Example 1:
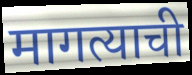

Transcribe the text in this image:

मागत्याची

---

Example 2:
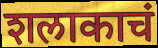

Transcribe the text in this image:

शलाकाचं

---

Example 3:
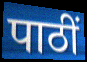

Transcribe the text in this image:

पाठीं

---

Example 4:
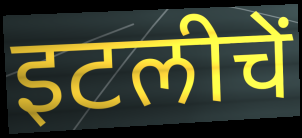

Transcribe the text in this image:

इटलीचें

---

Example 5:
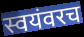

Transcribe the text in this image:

स्वयंवरच